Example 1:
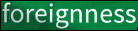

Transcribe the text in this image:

foreignness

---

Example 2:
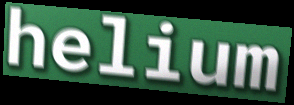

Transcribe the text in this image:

helium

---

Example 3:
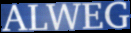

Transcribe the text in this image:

ALWEG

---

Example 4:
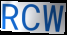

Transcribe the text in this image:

RCW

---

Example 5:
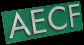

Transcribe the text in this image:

AECF